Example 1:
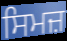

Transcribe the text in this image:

ਸਿਮਜ਼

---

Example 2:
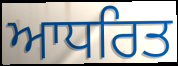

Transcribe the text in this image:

ਆਧਰਿਤ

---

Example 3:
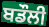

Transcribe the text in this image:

ਬਡੌਲੀ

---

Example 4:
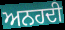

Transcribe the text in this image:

ਅਨਹਦੀ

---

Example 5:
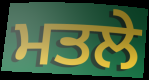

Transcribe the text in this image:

ਮਤਲੇ